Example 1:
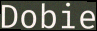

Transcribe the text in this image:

Dobie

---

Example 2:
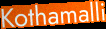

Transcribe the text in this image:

Kothamalli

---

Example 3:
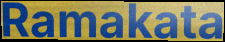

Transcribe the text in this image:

Ramakata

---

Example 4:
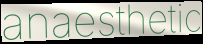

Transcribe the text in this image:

anaesthetic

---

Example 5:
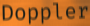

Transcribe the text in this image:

Doppler